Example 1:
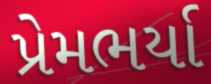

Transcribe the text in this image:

પ્રેમભર્યા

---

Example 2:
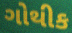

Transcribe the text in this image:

ગોથીક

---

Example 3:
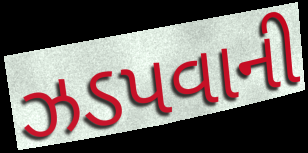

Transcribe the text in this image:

ઝડપવાની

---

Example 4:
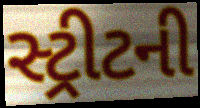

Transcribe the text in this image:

સ્ટ્રીટની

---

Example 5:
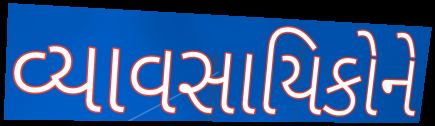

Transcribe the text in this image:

વ્યાવસાયિકોને